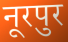
नूरपुर